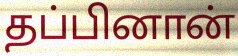
தப்பினான்